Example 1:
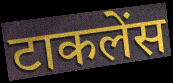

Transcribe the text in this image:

टाकलेंस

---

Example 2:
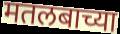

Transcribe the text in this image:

मतलबाच्या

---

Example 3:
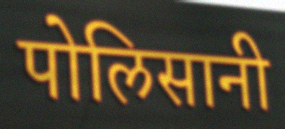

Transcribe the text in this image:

पोलिसानी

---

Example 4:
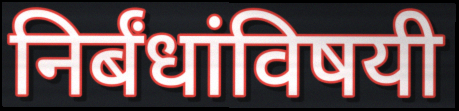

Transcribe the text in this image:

निर्बंधांविषयी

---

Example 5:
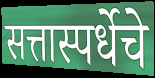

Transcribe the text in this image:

सत्तास्पर्धेचे